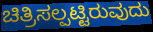
ಚಿತ್ರಿಸಲ್ಪಟ್ಟಿರುವುದು